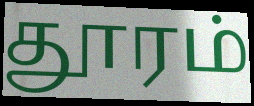
தூரம்